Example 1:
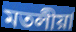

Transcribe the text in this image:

মতলীয়া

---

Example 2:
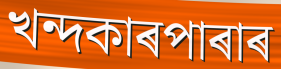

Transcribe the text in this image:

খন্দকাৰপাৰাৰ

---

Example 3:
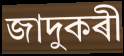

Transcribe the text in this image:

জাদুকৰী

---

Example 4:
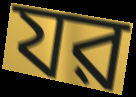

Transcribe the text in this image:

যৱ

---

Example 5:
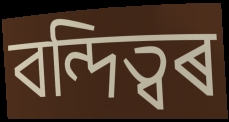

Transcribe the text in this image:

বন্দিত্বৰ